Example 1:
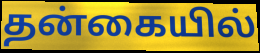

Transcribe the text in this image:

தன்கையில்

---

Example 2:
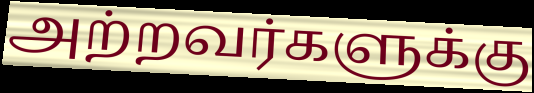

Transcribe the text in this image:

அற்றவர்களுக்கு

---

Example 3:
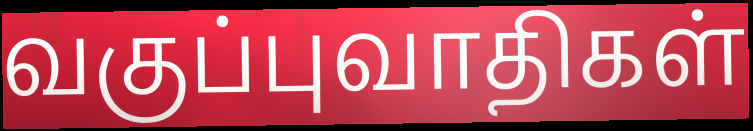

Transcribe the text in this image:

வகுப்புவாதிகள்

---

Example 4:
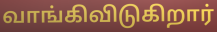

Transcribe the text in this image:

வாங்கிவிடுகிறார்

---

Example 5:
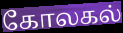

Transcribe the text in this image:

கோலகல்